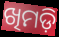
ଖିମଡ଼ି